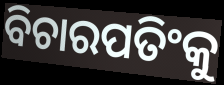
ବିଚାରପତିଂକୁ